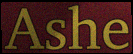
Ashe